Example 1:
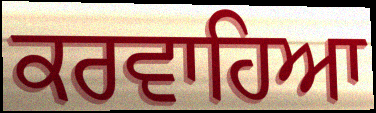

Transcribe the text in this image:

ਕਰਵਾਹਿਆ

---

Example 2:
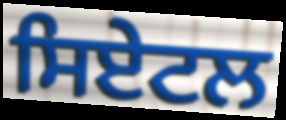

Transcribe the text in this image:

ਸਿਏਟਲ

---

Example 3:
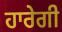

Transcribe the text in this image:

ਹਾਰੇਗੀ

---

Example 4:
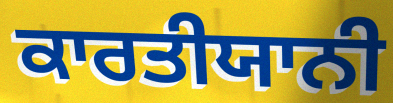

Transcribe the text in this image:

ਕਾਰਤੀਯਾਨੀ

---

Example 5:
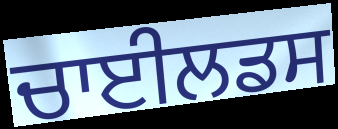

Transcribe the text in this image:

ਚਾਈਲਡਸ